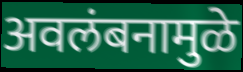
अवलंबनामुळे